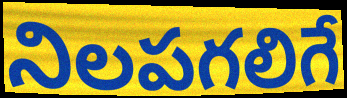
నిలపగలిగే